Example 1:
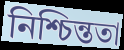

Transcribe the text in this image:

নিশ্চিন্ততা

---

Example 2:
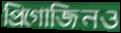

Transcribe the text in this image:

প্রিগোজিনও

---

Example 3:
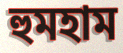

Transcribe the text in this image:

হুমহাম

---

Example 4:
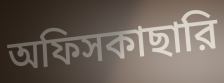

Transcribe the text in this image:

অফিসকাছারি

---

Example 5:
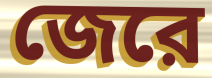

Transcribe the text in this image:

জেরে